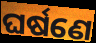
ଘର୍ଷଣେ